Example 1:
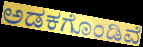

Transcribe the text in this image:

ಅಡಕಗೊಂಡಿವೆ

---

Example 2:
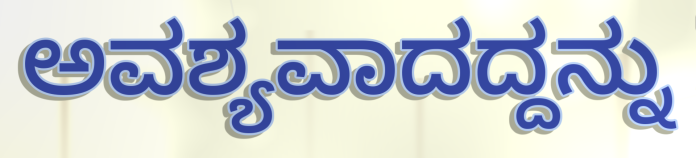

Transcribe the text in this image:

ಅವಶ್ಯವಾದದ್ದನ್ನು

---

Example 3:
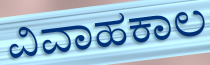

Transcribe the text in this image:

ವಿವಾಹಕಾಲ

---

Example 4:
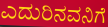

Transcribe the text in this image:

ಎದುರಿನವನಿಗೆ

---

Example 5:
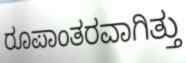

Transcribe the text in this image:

ರೂಪಾಂತರವಾಗಿತ್ತು